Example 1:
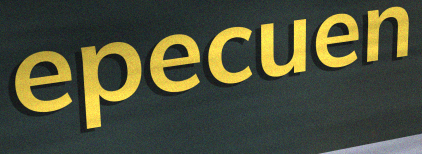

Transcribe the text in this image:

epecuen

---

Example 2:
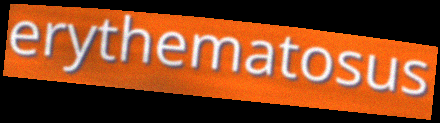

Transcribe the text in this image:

erythematosus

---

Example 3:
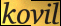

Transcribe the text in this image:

kovil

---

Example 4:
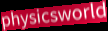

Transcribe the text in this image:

physicsworld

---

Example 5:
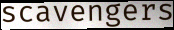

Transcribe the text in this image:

scavengers